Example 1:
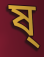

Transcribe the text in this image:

ষ্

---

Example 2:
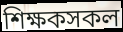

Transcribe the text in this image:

শিক্ষকসকল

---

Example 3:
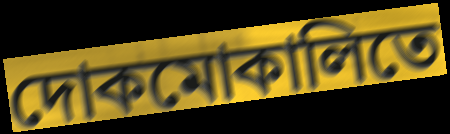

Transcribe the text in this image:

দোকমোকালিতে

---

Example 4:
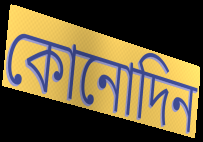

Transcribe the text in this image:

কোনোদিন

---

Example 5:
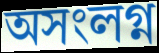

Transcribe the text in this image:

অসংলগ্ন